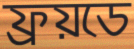
ফ্ৰয়ডে